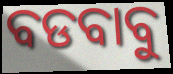
ବଡବାବୁ